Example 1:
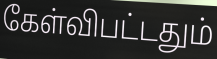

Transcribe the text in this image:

கேள்விபட்டதும்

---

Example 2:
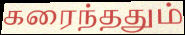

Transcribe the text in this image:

கரைந்ததும்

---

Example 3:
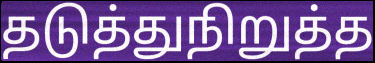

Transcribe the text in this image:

தடுத்துநிறுத்த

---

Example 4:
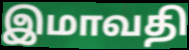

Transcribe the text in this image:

இமாவதி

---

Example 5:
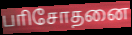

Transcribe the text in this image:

பரிசோதனை